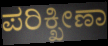
ಪರಿಕ್ಖೀಣಾ